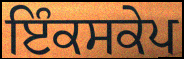
ਇੰਕਸਕੇਪ